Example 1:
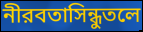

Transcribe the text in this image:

নীরবতাসিন্ধুতলে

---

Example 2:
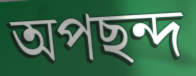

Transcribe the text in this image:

অপছন্দ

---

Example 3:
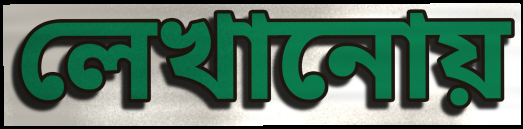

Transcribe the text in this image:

লেখানোয়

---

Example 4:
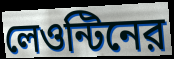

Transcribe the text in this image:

লেওন্টিনের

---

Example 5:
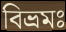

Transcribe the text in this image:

বিভ্রমঃ